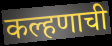
कल्हणाची